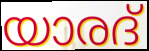
യാരദ്